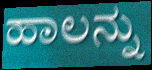
ಹಾಲನ್ನು